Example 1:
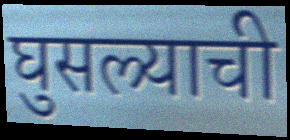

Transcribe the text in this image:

घुसल्याची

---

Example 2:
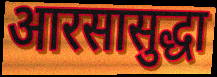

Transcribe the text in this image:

आरसासुद्धा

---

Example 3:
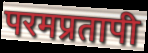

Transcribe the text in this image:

परमप्रतापी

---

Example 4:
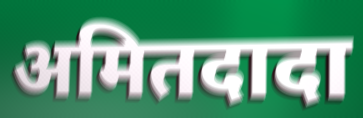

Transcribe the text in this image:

अमितदादा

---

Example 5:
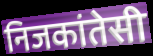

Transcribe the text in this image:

निजकांतेसी